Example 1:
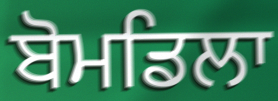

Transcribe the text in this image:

ਬੋਮਡਿਲਾ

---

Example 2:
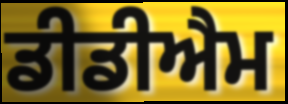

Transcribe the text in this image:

ਡੀਡੀਐਮ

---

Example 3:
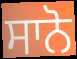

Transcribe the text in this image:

ਸਾਨੋ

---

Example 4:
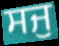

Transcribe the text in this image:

ਸਜੁ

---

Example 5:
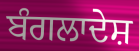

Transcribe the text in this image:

ਬੰਗਲਾਦੇਸ਼